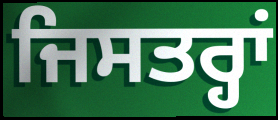
ਜਿਸਤਰ੍ਹਾਂ